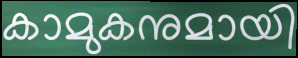
കാമുകനുമായി